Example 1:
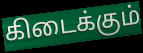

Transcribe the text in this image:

கிடைக்கும்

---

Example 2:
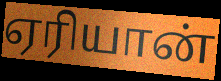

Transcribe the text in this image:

ஏரியான்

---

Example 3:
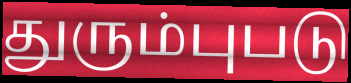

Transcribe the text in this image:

துரும்புபடு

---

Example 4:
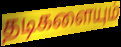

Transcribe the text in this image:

தடிகளையும்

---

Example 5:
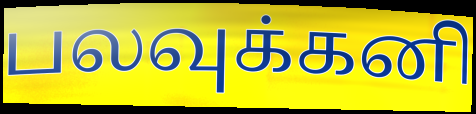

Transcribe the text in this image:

பலவுக்கனி